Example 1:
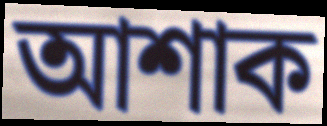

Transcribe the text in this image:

আশাক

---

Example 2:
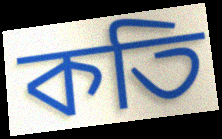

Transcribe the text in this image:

কতি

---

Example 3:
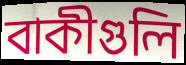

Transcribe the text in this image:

বাকীগুলি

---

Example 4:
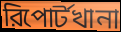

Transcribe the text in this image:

রিপোর্টখানা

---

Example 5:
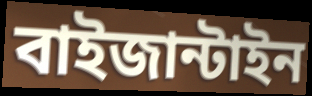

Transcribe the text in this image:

বাইজান্টাইন